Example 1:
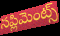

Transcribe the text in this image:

సప్లిమెంట్స్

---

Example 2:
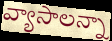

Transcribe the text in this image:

వ్యాసాలన్నా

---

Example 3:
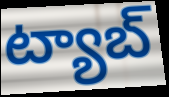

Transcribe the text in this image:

ట్యాబ్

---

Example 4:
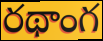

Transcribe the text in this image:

రథాంగ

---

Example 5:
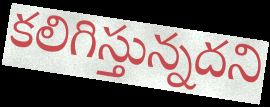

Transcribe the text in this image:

కలిగిస్తున్నదని